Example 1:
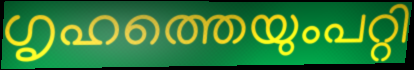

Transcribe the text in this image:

ഗൃഹത്തെയുംപറ്റി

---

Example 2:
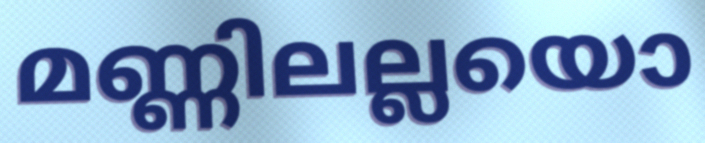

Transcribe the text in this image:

മണ്ണിലല്ലയൊ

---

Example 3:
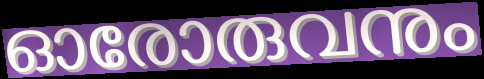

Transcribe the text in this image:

ഓരോരുവനും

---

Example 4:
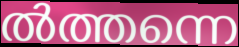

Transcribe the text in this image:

ൽത്തന്നെ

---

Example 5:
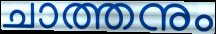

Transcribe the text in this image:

ചാത്തനും